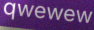
qwewew